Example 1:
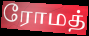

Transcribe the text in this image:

ரோமத்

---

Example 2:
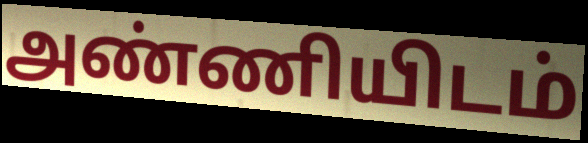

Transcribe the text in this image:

அண்ணியிடம்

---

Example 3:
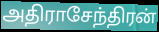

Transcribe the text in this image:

அதிராசேந்திரன்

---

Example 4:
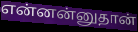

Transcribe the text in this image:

என்னன்னுதான்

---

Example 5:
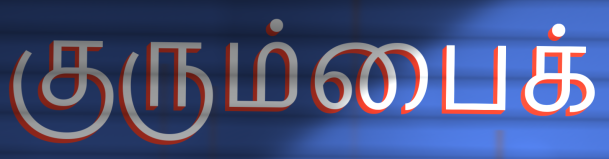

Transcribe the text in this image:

குரும்பைக்